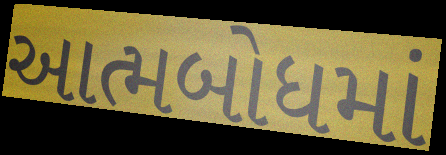
આત્મબોધમાં